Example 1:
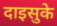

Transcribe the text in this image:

दाइसुके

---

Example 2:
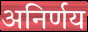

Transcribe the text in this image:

अनिर्णय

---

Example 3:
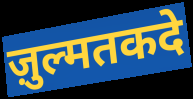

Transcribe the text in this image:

ज़ुल्मतकदे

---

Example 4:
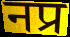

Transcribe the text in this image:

नप्र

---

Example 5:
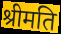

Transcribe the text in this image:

श्रीमति